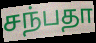
சந்பதா